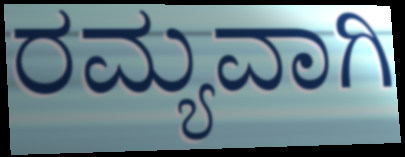
ರಮ್ಯವಾಗಿ